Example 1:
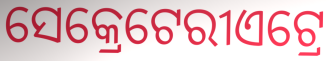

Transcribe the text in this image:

ସେକ୍ରେଟେରୀଏଟ୍ରେ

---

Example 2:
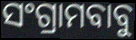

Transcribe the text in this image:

ସଂଗ୍ରାମବାବୁ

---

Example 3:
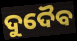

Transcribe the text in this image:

ଦୁଦୈବ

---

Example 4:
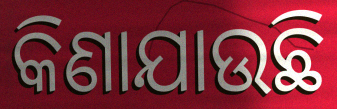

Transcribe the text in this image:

କିଣାଯାଉଛି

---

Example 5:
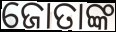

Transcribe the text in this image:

ଜୋତାଙ୍କ